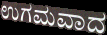
ಉಗಮವಾದ